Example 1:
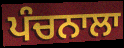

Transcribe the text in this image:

ਪੰਚਨਾਲਾ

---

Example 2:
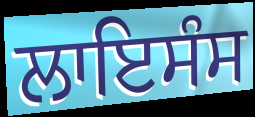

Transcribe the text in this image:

ਲਾਇਸੰਸ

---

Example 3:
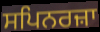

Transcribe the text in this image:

ਸਪਿਨਰਜ਼ਾ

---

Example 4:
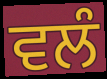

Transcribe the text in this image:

ਵਲੰ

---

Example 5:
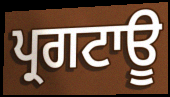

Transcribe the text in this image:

ਪ੍ਰਗਟਾਊ